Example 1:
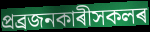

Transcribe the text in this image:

প্ৰব্ৰজনকাৰীসকলৰ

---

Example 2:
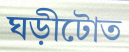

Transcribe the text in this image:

ঘড়ীটোত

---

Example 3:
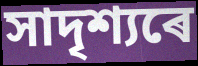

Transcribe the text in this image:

সাদৃশ্যৰে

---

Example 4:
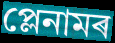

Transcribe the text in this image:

প্লেনামৰ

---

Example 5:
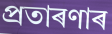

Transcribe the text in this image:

প্ৰতাৰণাৰ